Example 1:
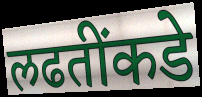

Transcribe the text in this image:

लढतींकडे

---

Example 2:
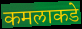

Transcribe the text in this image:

कमलाकडे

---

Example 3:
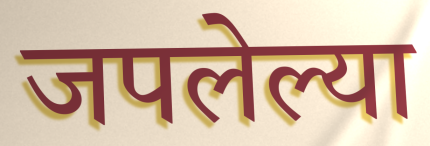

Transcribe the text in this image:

जपलेल्या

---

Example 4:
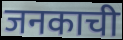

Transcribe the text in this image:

जनकाची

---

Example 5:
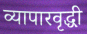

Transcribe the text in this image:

व्यापारवृद्धी